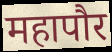
महापौर